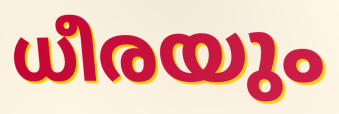
ധീരയും